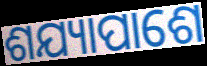
ଶଯ୍ୟାପାଶେ